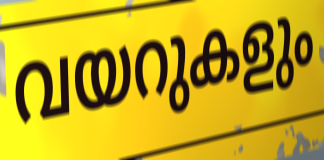
വയറുകളും